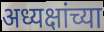
अध्यक्षांच्या